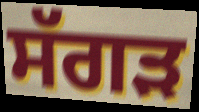
ਸੱਗੜ